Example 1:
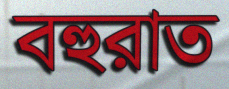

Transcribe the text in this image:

বহুরাত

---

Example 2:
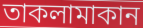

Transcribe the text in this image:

তাকলামাকান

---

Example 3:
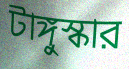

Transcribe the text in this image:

টাঙ্গুস্কার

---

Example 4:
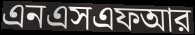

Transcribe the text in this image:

এনএসএফআর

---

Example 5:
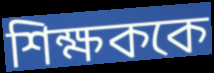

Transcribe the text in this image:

শিক্ষককে